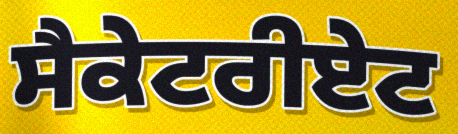
ਸੈਕੇਟਰੀਏਟ